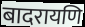
बादरायणि